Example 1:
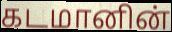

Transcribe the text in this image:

கடமானின்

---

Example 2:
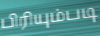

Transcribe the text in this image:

பிரியும்படி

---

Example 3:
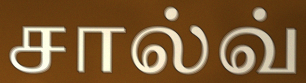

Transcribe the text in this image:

சால்வ்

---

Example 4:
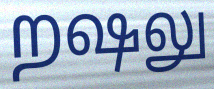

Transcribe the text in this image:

றஷலு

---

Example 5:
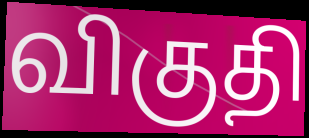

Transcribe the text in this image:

விகுதி